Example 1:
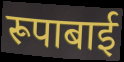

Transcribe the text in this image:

रूपाबाई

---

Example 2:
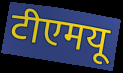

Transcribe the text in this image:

टीएमयू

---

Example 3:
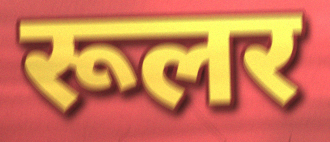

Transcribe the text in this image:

रूलर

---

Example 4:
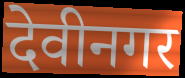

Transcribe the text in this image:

देवीनगर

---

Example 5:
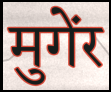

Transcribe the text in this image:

मुगेंर